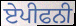
ਏਪੀਫਨੀ